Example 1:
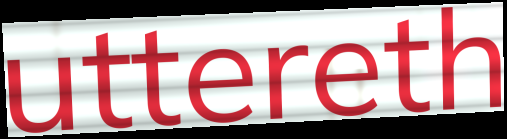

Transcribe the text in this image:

uttereth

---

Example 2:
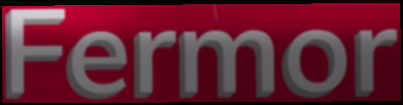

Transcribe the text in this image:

Fermor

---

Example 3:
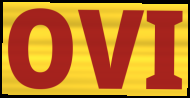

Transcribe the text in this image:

OVI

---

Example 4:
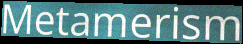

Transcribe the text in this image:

Metamerism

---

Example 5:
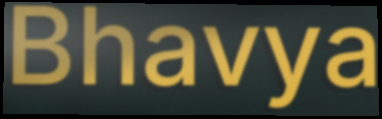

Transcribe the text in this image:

Bhavya